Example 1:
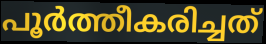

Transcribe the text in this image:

പൂർത്തീകരിച്ചത്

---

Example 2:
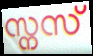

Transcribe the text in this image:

സ്നസ്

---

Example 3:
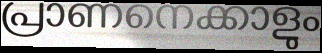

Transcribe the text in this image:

പ്രാണനെക്കാളും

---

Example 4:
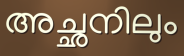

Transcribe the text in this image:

അച്ഛനിലും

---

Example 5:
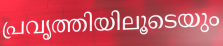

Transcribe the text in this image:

പ്രവൃത്തിയിലൂടെയും